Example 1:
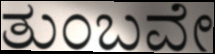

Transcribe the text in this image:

ತುಂಬವೇ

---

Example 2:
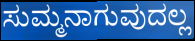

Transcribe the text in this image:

ಸುಮ್ಮನಾಗುವುದಲ್ಲ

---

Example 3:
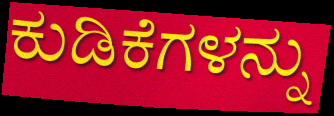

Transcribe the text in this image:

ಕುಡಿಕೆಗಳನ್ನು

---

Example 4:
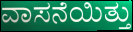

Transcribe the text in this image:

ವಾಸನೆಯಿತ್ತು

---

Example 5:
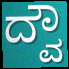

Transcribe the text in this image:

ದ್ವೌ